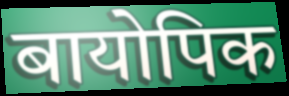
बायोपिक